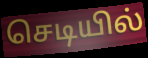
செடியில்